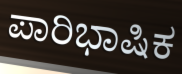
ಪಾರಿಭಾಷಿಕ